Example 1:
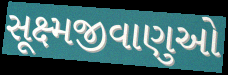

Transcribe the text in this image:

સૂક્ષ્મજીવાણુઓ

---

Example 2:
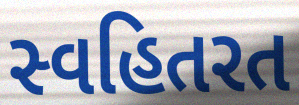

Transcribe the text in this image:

સ્વહિતરત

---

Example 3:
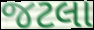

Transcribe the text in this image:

જટલા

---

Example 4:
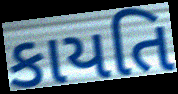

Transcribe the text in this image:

કાયતિ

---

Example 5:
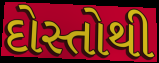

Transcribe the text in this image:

દોસ્તોથી